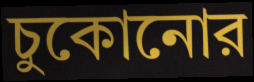
চুকোনোর